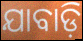
ଯାବାଡ଼ି